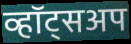
व्हॉट्सअप